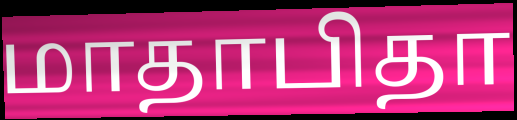
மாதாபிதா